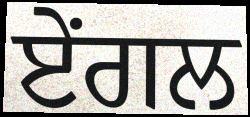
ਏਂਗਲ